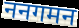
ननगमन